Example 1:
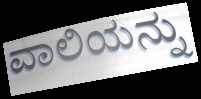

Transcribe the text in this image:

ವಾಲಿಯನ್ನು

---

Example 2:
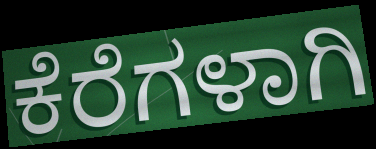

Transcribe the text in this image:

ಕೆರೆಗಳಾಗಿ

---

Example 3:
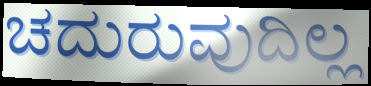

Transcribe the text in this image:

ಚದುರುವುದಿಲ್ಲ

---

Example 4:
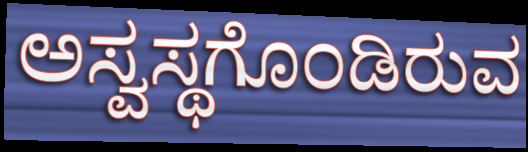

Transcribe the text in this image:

ಅಸ್ವಸ್ಥಗೊಂಡಿರುವ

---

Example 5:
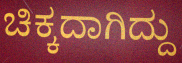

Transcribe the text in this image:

ಚಿಕ್ಕದಾಗಿದ್ದು